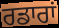
ਰਡਾਰਾਂ